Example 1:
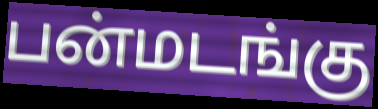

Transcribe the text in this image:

பன்மடங்கு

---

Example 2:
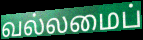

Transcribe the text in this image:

வல்லமைப்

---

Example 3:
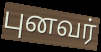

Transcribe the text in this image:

புனவர்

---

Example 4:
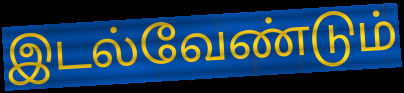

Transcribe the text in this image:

இடல்வேண்டும்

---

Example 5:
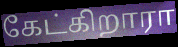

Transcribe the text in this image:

கேட்கிறாரா